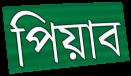
পিয়াব